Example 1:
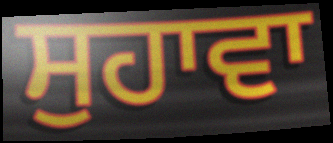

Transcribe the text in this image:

ਸੁਹਾਵਾ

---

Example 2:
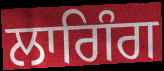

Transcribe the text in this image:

ਲਾਗਿੰਗ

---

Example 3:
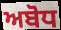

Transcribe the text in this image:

ਅਬੋਧ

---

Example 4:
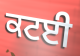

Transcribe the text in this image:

ਕਟਈ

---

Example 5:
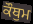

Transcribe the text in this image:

ਕੌਥੁਮ